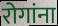
रोगांना